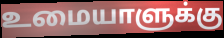
உமையாளுக்கு